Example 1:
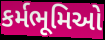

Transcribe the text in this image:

કર્મભૂમિઓ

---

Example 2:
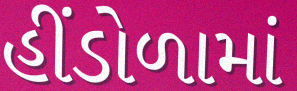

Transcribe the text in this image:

હીંડોળામાં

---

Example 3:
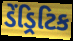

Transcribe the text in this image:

ડેંડ્રિટિક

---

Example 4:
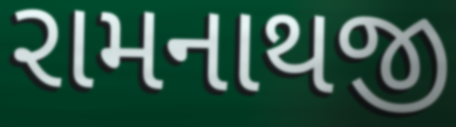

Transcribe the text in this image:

રામનાથજી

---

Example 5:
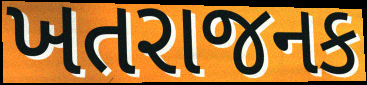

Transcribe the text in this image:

ખતરાજનક